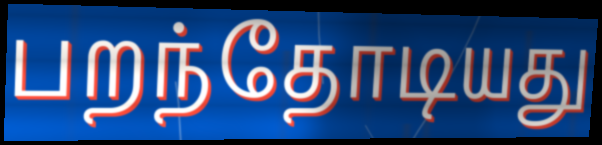
பறந்தோடியது